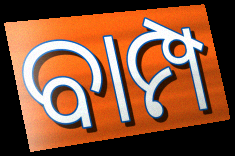
ବାମ୍ପ